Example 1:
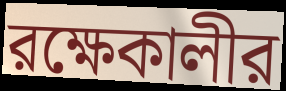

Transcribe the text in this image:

রক্ষেকালীর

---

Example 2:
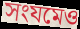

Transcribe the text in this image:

সংযমেও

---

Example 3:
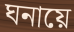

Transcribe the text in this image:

ঘনায়ে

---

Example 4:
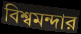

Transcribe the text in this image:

বিশ্বমন্দার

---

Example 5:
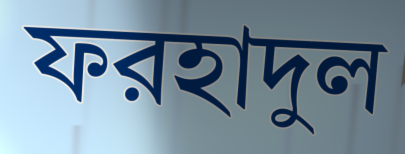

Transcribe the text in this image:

ফরহাদুল